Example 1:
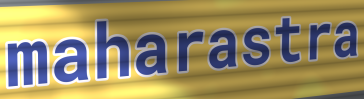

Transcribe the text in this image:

maharastra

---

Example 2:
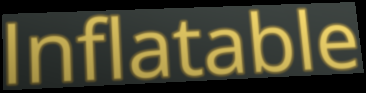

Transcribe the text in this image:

Inflatable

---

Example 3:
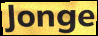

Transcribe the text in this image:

Jonge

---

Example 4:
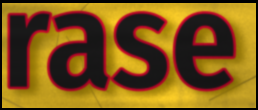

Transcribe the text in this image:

rase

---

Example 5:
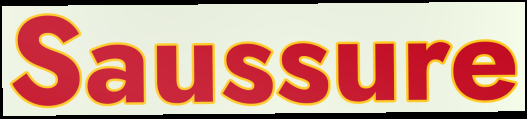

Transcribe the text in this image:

Saussure